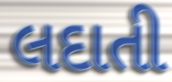
લદાતી